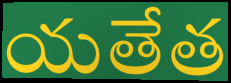
యతేత